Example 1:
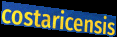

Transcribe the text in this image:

costaricensis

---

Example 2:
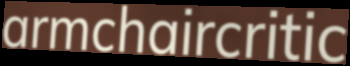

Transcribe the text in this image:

armchaircritic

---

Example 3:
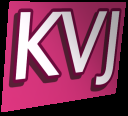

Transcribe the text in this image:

KVJ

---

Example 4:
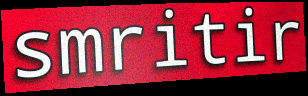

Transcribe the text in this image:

smritir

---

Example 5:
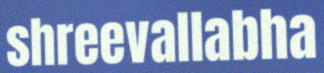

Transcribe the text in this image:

shreevallabha